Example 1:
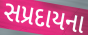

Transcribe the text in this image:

સપ્રદાયના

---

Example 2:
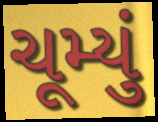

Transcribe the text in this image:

ચૂમ્યું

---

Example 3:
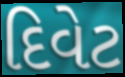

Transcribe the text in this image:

દિવેટ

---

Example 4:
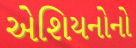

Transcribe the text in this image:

એશિયનોનો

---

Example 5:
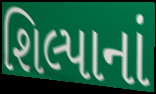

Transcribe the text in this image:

શિલ્પાનાં